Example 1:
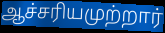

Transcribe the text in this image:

ஆச்சரியமுற்றார்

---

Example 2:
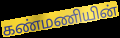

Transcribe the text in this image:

கண்மணியின்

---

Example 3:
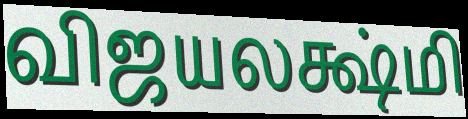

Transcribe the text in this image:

விஜயலக்ஷ்மி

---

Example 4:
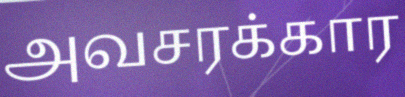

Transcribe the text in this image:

அவசரக்கார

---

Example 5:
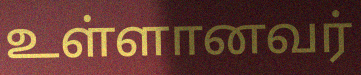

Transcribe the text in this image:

உள்ளானவர்